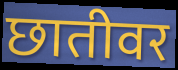
छातीवर